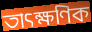
তাৎক্ষণিক